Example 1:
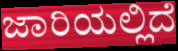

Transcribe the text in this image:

ಜಾರಿಯಲ್ಲಿದೆ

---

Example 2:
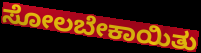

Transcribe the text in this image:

ಸೋಲಬೇಕಾಯಿತು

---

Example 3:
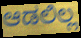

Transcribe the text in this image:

ಆಡಲಿಲ್ಲ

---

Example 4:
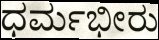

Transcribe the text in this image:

ಧರ್ಮಭೀರು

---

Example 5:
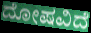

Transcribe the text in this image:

ದೋಷವಿದೆ